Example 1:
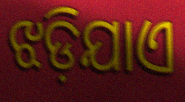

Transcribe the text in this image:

ଝଡ଼ିଯାଏ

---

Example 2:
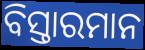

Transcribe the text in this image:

ବିସ୍ତାରମାନ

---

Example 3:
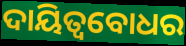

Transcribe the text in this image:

ଦାୟିତ୍ବବୋଧର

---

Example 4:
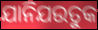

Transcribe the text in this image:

ଯାନିଯଉତୁକ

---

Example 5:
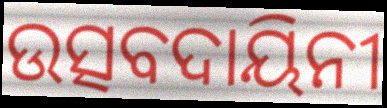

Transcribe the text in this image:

ଉତ୍ସବଦାୟିନୀ